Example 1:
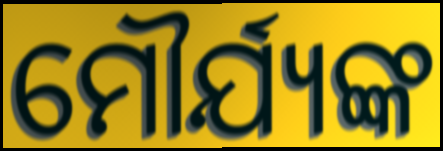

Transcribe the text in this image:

ମୌର୍ଯ୍ୟଙ୍କ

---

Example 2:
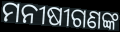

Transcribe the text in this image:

ମନୀଷୀଗଣଙ୍କ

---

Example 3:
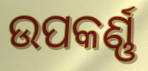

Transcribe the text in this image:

ଉପକର୍ଣ୍ଣ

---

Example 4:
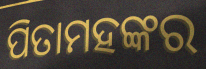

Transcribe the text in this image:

ପିତାମହଙ୍କର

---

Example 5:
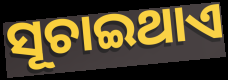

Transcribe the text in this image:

ସୂଚାଇଥାଏ